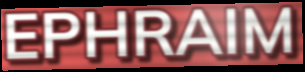
EPHRAIM